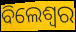
ବିଲେଶ୍ଵର